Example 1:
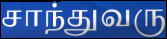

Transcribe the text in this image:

சாந்துவரு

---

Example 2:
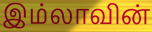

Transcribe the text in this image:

இம்லாவின்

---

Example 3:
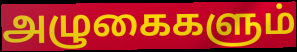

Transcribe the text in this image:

அழுகைகளும்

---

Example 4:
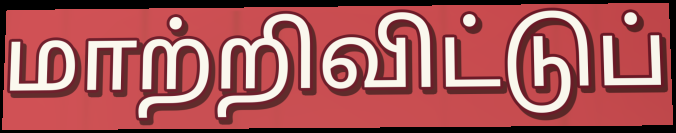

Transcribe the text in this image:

மாற்றிவிட்டுப்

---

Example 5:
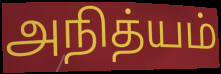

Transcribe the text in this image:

அநித்யம்